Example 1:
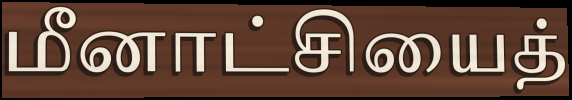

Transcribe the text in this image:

மீனாட்சியைத்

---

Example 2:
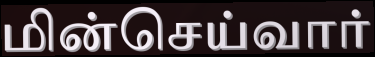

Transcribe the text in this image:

மின்செய்வார்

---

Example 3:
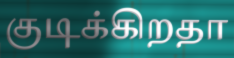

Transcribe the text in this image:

குடிக்கிறதா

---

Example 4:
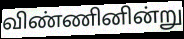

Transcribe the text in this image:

விண்ணினின்று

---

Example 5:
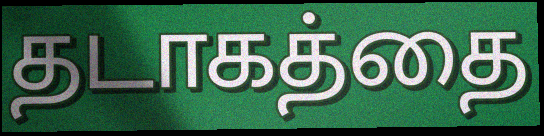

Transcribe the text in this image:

தடாகத்தை